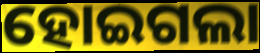
ହୋଇଗଲା